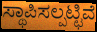
ಸ್ಥಾಪಿಸಲ್ಪಟ್ಟಿವೆ